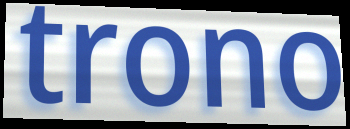
trono